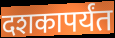
दशकापर्यंत